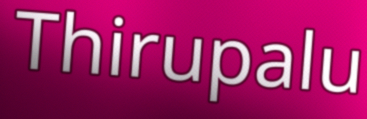
Thirupalu